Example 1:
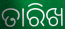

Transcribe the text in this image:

ତାରିଖ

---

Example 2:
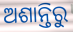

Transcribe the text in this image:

ଅଶାନ୍ତିରୁ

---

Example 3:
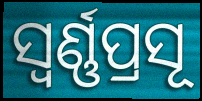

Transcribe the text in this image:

ସ୍ବର୍ଣ୍ଣପ୍ରସୂ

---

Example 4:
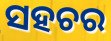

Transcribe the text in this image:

ସହଚର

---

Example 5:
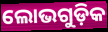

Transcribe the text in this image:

ଲୋଭଗୁଡ଼ିକ